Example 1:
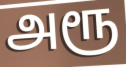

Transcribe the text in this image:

அரூ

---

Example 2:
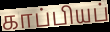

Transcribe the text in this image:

காப்பியப்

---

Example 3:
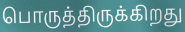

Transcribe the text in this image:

பொருத்திருக்கிறது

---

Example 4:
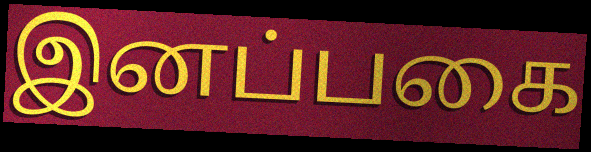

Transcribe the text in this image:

இனப்பகை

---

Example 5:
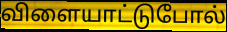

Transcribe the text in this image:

விளையாட்டுபோல்